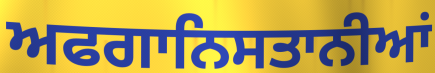
ਅਫਗਾਨਿਸਤਾਨੀਆਂ